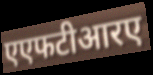
एएफटीआरए